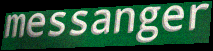
messanger